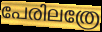
പേരിലത്രേ